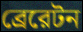
ব্রেরেটন